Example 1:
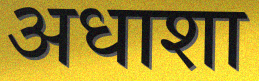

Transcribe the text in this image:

अधाशा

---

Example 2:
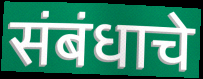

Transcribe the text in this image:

संबंधाचे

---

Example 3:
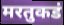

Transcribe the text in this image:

मरतुकडं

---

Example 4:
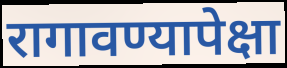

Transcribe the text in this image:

रागावण्यापेक्षा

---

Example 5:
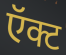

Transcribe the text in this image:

ऍक्ट